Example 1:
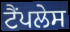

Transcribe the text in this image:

ਟੈਂਪਲੇਸ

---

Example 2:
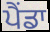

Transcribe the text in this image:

ਪੈਂਡਾ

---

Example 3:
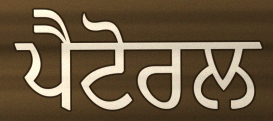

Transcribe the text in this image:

ਪੈਟੋਰਲ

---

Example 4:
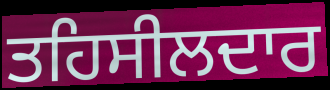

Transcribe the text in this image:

ਤਹਿਸੀਲਦਾਰ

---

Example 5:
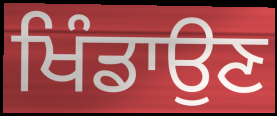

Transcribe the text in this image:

ਖਿੰਡਾਉਣ